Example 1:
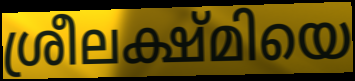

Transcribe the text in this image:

ശ്രീലക്ഷ്മിയെ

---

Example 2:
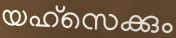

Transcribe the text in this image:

യഹ്സെക്കും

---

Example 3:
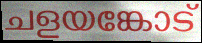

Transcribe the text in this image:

ചളയങ്കോട്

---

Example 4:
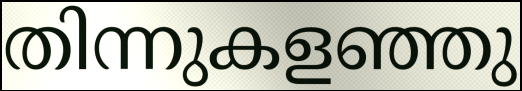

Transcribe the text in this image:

തിന്നുകളഞ്ഞു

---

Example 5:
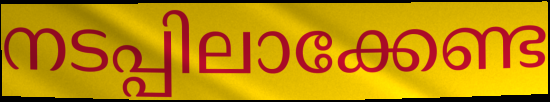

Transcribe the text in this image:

നടപ്പിലാക്കേണ്ട